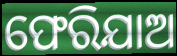
ଫେରିଯାଅ